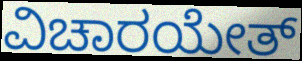
ವಿಚಾರಯೇತ್